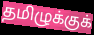
தமிழுக்குக்